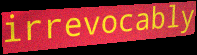
irrevocably